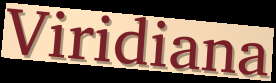
Viridiana